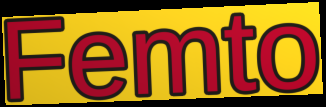
Femto